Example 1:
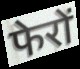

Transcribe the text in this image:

फेरों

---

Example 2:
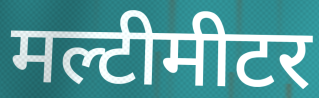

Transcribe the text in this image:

मल्टीमीटर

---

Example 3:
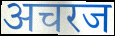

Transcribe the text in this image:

अचरज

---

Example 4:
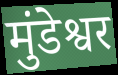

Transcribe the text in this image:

मुंडेश्वर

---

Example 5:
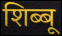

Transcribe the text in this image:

शिब्बू